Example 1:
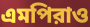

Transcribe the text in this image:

এমপিরাও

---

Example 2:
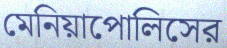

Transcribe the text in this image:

মেনিয়াপোলিসের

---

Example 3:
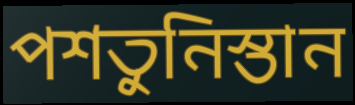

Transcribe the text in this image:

পশতুনিস্তান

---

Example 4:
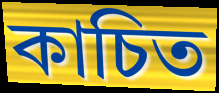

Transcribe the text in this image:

কাচিত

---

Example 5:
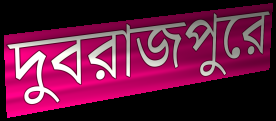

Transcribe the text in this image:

দুবরাজপুরে